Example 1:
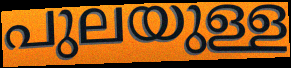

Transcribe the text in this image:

പുലയുള്ള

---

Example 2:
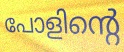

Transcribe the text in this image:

പോളിന്റെ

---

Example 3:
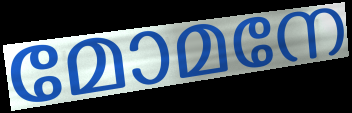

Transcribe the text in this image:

മോമനേ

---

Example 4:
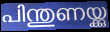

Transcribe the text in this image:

പിന്തുണയ്ക്കു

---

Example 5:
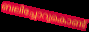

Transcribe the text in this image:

ബലിച്ചോറുകൊണ്ട്